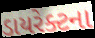
ડાયરેક્ટના